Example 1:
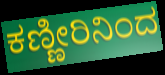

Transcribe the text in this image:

ಕಣ್ಣೀರಿನಿಂದ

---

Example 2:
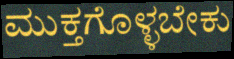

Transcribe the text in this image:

ಮುಕ್ತಗೊಳ್ಳಬೇಕು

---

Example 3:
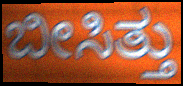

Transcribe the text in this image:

ಬೀಸಿತ್ತು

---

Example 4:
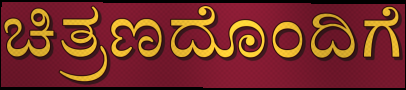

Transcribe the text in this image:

ಚಿತ್ರಣದೊಂದಿಗೆ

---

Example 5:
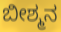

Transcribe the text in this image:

ಬೀಶ್ಮನ